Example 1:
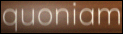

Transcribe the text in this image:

quoniam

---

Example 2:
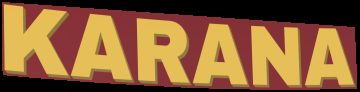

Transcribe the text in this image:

KARANA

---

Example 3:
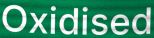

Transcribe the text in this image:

Oxidised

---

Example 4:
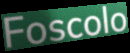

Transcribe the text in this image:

Foscolo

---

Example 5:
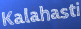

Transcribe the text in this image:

Kalahasti